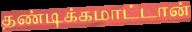
தண்டிக்கமாட்டான்